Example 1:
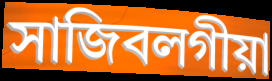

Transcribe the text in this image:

সাজিবলগীয়া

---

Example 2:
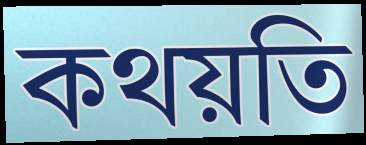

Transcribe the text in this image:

কথয়তি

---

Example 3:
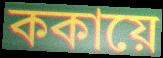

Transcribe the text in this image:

ককায়ে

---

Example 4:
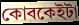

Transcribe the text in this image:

কোবকেইটা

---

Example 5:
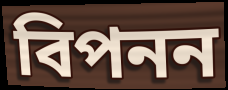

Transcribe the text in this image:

বিপনন